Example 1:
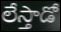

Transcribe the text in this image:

లేస్తాడో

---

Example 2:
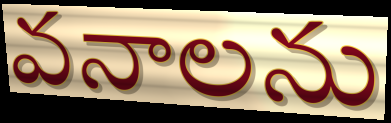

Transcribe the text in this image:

వనాలను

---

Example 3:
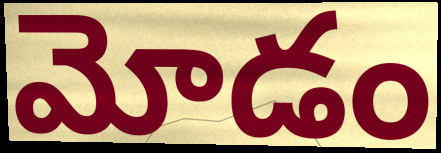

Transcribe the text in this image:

మోడం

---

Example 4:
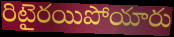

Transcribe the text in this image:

రిటైరయిపోయారు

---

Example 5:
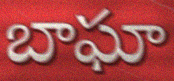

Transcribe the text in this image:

బాఘా